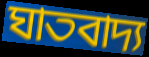
ঘাতবাদ্য